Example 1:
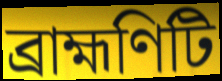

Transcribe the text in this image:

ব্রাহ্মণিটি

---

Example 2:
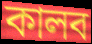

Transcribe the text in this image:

কালব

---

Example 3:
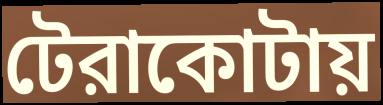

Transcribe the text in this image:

টেরাকোটায়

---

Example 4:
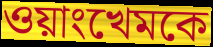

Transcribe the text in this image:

ওয়াংখেমকে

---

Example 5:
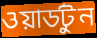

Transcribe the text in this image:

ওয়ার্ডটুন